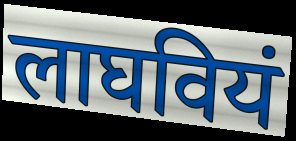
लाघवियं